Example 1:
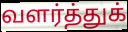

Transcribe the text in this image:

வளர்த்துக்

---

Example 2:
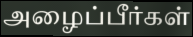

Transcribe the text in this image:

அழைப்பீர்கள்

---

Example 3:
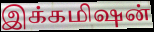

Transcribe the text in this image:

இக்கமிஷன்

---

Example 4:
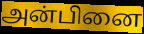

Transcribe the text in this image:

அன்பினை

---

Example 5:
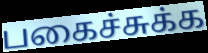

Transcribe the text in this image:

பகைச்சுக்க